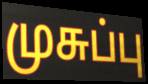
முசுப்பு